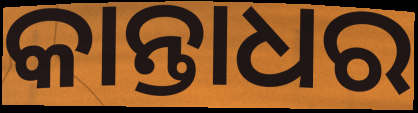
କାନ୍ତାଧର